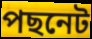
পছনেট